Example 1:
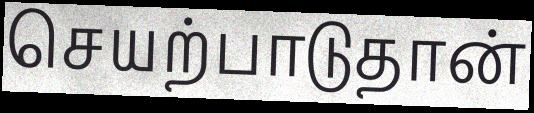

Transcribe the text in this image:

செயற்பாடுதான்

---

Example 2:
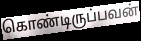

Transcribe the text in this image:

கொண்டிருப்பவன்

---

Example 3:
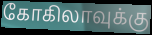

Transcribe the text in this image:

கோகிலாவுக்கு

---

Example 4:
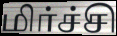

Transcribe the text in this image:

மிர்ச்சி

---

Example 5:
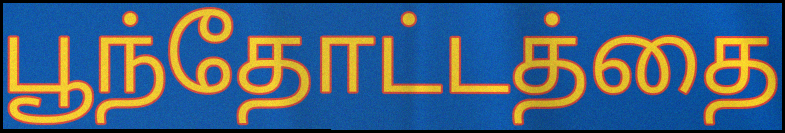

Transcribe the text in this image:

பூந்தோட்டத்தை